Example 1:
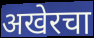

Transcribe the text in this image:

अखेरचा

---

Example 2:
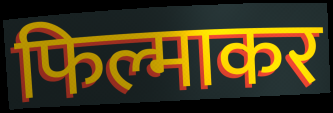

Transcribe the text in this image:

फिल्माकर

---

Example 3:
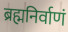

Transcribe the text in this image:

ब्रह्मनिर्वाणं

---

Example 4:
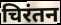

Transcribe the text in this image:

चिरंतन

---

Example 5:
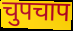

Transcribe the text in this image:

चुपचाप